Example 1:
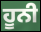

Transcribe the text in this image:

ਹੂਨੀ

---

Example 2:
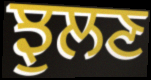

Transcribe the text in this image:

ਝੁਲਣ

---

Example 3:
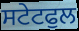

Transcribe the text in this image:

ਸਟੇਟਫੁਲ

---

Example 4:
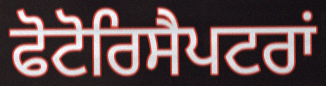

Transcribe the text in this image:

ਫੋਟੋਰਿਸੈਪਟਰਾਂ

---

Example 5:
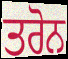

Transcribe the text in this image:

ਤਰੋਨ